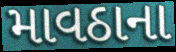
માવઠાના